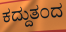
ಕದ್ದುತಂದ